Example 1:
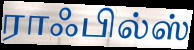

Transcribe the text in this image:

ராஃபில்ஸ்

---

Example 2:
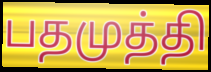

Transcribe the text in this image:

பதமுத்தி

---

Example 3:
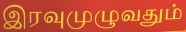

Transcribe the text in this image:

இரவுமுழுவதும்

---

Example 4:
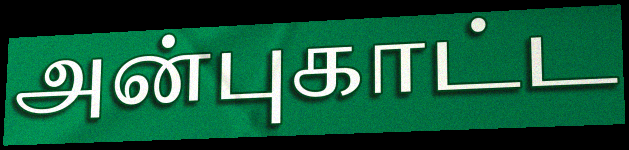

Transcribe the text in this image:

அன்புகாட்ட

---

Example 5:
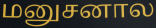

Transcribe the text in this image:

மனுசனால